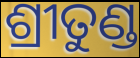
ଶ୍ରୀତୁଣ୍ଡ